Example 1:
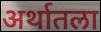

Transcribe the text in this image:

अर्थातला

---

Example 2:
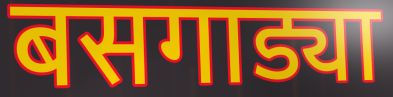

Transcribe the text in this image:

बसगाड्या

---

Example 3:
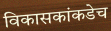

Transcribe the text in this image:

विकासकांकडेच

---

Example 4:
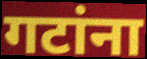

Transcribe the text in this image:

गटांना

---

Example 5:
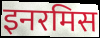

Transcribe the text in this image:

इनरमिस